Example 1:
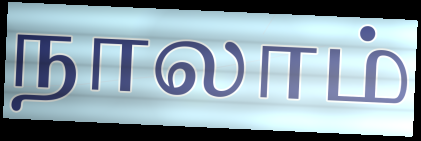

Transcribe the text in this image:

நாலாம்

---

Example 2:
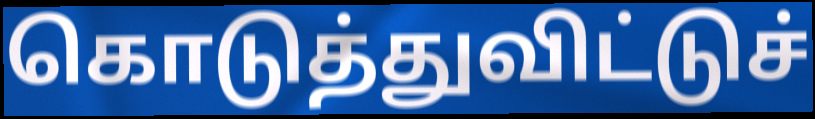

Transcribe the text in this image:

கொடுத்துவிட்டுச்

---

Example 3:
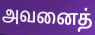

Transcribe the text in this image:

அவனைத்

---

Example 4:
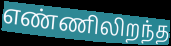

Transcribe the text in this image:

எண்ணிலிறந்த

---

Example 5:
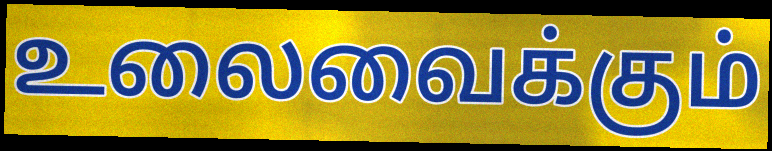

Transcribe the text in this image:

உலைவைக்கும்